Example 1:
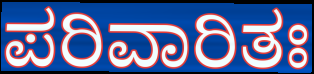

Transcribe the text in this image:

ಪರಿವಾರಿತಃ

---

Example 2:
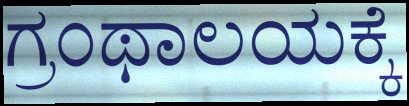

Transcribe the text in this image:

ಗ್ರಂಥಾಲಯಕ್ಕೆ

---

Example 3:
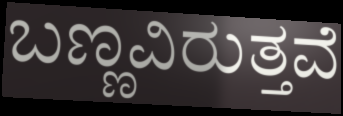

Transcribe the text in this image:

ಬಣ್ಣವಿರುತ್ತವೆ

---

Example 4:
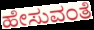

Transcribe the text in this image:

ಹೇಸುವಂತೆ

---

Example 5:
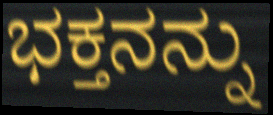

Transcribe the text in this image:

ಭಕ್ತನನ್ನು